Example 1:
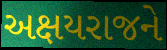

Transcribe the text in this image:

અક્ષયરાજને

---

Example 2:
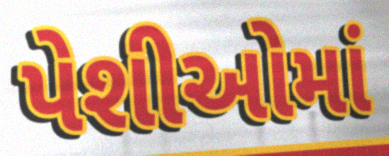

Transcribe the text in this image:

પેશીઓમાં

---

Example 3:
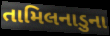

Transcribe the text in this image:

તામિલનાડુના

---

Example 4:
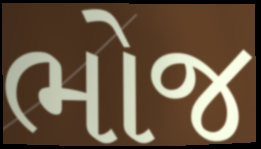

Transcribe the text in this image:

ભોજ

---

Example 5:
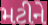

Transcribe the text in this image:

મટીને